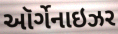
ઑર્ગેનાઇઝર